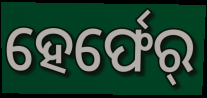
ହେର୍ଫେର୍